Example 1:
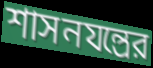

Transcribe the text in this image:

শাসনযন্ত্রের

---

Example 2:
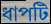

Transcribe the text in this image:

ধাপটি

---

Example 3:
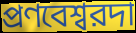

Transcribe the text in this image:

প্রণবেশ্বরদা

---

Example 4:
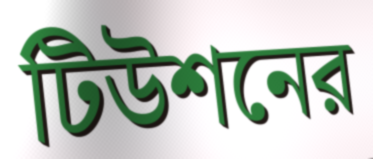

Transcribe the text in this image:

টিউশনের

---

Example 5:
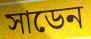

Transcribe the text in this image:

সাডেন